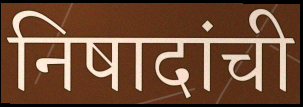
निषादांची